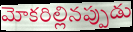
మోకరిల్లినప్పుడు